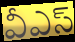
వీఎస్